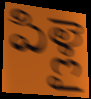
పిళ్లై